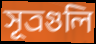
সূত্রগুলি